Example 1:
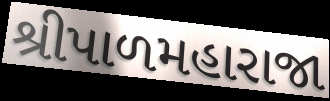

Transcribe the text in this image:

શ્રીપાળમહારાજા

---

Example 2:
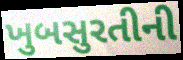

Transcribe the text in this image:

ખુબસુરતીની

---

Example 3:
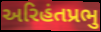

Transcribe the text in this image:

અરિહંતપ્રભુ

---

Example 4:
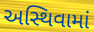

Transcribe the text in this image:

અસ્થિવામાં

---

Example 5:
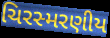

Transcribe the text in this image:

ચિરસ્મરણીય